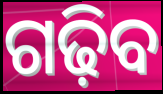
ଗଢ଼ିବ